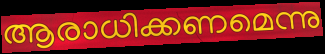
ആരാധിക്കണമെന്നു